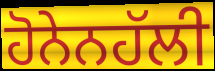
ਹੋਨੇਨਹੱਲੀ